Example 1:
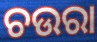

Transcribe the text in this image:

ଚଉରା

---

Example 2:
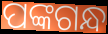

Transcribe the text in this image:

ପଙ୍କଗନ୍ଧ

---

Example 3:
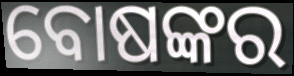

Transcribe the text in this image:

ବୋଷଙ୍କର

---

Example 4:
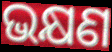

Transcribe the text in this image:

ଭକ୍ଷଣ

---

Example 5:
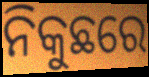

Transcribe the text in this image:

ନିକୁଛରେ